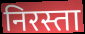
निरस्ता